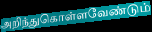
அறிந்துகொள்ளவேண்டும்